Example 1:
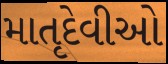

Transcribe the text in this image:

માતૃદેવીઓ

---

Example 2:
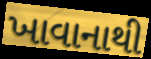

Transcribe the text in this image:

ખાવાનાથી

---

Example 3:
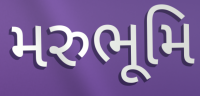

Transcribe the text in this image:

મરુભૂમિ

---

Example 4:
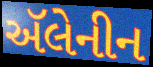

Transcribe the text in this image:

ઍલેનીન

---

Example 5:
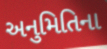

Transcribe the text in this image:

અનુમિતિના